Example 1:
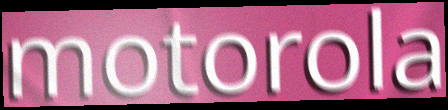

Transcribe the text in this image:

motorola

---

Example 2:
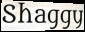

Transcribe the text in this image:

Shaggy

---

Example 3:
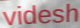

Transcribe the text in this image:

videsh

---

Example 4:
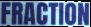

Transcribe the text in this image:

FRACTION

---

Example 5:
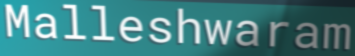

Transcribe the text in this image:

Malleshwaram